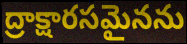
ద్రాక్షారసమైనను